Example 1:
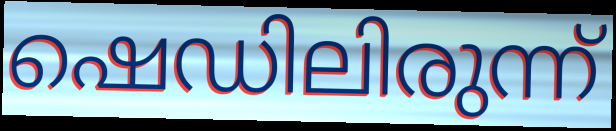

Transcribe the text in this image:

ഷെഡിലിരുന്ന്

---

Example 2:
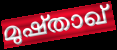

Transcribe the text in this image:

മുഷ്താഖ്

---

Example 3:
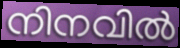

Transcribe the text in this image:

നിനവിൽ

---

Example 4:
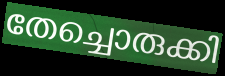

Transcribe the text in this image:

തേച്ചൊരുക്കി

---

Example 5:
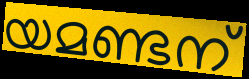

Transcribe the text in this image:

യമണ്ടന്